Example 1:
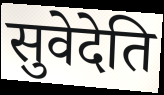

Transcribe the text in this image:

सुवेदेति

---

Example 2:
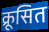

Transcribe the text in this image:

क्रूसित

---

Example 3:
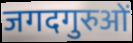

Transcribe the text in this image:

जगदगुरुओं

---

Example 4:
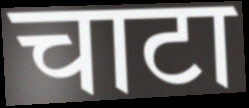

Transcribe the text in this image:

चाटा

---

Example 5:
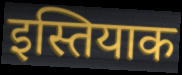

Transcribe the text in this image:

इस्तियाक